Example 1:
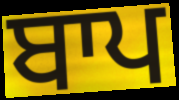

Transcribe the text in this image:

ਬਾਪ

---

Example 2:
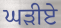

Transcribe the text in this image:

ਘੜੀਏ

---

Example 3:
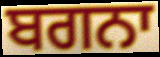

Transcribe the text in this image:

ਬਗਨਾ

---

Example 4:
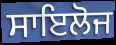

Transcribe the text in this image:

ਸਾਇਲੋਜ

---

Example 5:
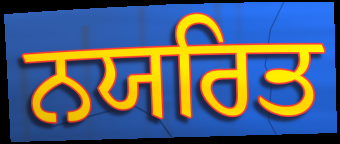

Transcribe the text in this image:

ਨਯਰਿਤ